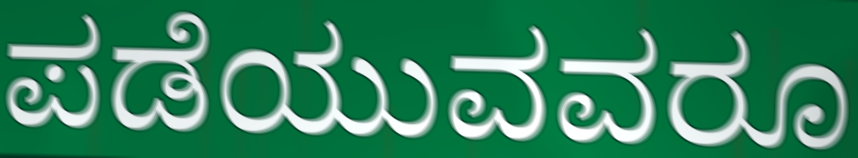
ಪಡೆಯುವವರೂ